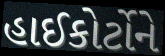
હાઈકોર્ટોને